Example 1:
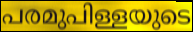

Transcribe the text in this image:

പരമുപിള്ളയുടെ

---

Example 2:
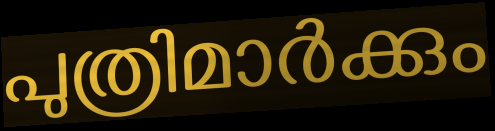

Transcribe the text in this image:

പുത്രിമാർക്കും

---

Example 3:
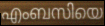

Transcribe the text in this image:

എംബസിയെ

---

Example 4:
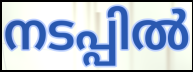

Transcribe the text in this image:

നടപ്പിൽ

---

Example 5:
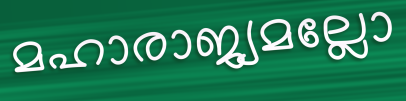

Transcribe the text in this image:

മഹാരാജ്യമല്ലോ